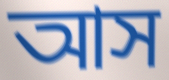
আস